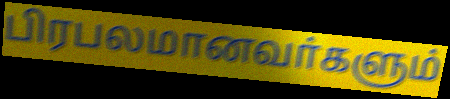
பிரபலமானவர்களும்